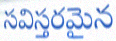
సవిస్తరమైన